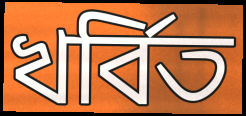
খর্বিত